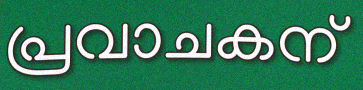
പ്രവാചകന്